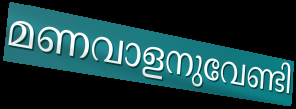
മണവാളനുവേണ്ടി